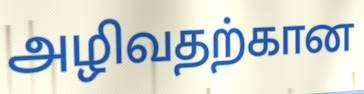
அழிவதற்கான